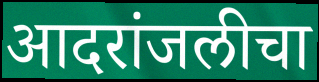
आदरांजलीचा